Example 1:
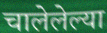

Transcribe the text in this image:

चालेलेल्या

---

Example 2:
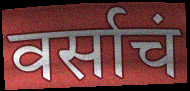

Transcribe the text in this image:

वर्साचं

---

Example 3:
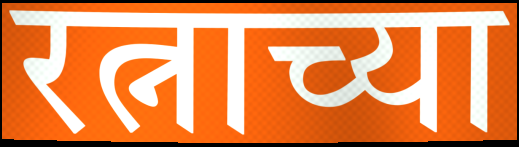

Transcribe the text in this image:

रत्नाच्या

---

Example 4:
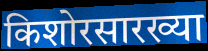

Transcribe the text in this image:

किशोरसारख्या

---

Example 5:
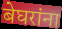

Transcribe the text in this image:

बेघरांना